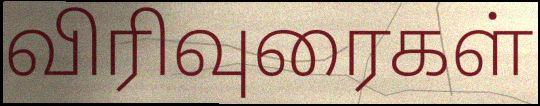
விரிவுரைகள்